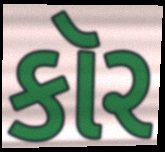
કૉર